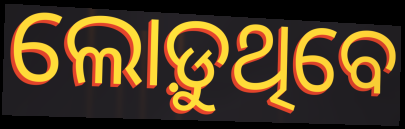
ଲୋଡ଼ୁଥିବେ